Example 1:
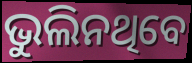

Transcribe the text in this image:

ଭୁଲିନଥିବେ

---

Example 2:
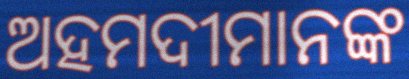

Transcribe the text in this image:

ଅହମଦୀମାନଙ୍କ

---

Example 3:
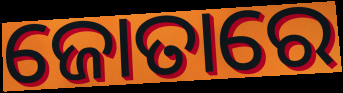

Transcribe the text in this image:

ଜୋତାରେ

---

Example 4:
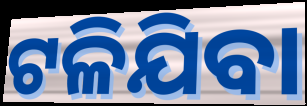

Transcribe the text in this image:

ଟଳିଯିବା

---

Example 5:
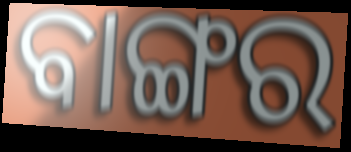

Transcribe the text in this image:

ବାଙ୍ଗର